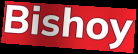
Bishoy